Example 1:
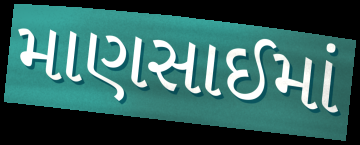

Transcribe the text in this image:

માણસાઈમાં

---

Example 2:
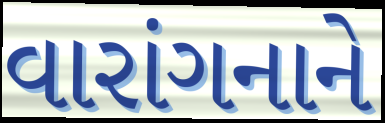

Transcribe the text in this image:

વારાંગનાને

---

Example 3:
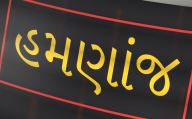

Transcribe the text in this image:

હમણાંજ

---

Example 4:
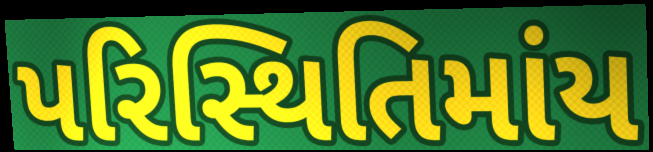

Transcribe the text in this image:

પરિસ્થિતિમાંય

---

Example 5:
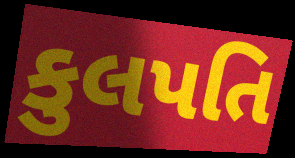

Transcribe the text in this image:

કુલપતિ